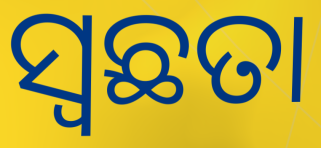
ସ୍ବଛତା